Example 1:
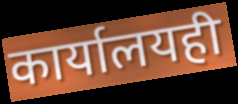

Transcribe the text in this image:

कार्यालयही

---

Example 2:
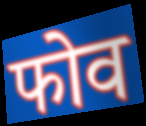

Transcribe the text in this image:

फोव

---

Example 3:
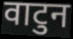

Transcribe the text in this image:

वाटुन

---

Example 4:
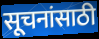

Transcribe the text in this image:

सूचनांसाठी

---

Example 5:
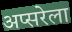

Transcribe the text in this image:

अप्सरेला